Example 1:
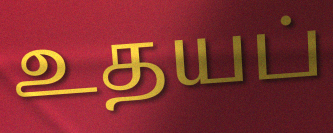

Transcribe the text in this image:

உதயப்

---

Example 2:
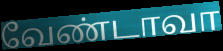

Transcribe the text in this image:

வேண்டாவா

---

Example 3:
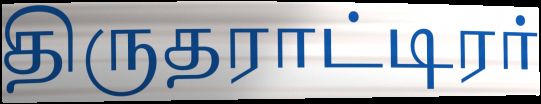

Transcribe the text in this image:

திருதராட்டிரர்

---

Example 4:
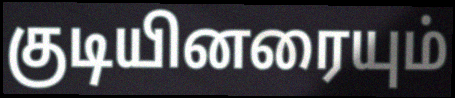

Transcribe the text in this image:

குடியினரையும்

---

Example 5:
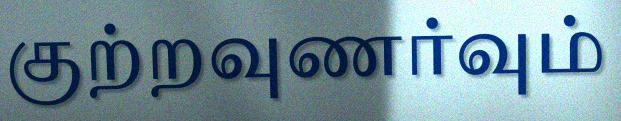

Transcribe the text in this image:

குற்றவுணர்வும்